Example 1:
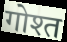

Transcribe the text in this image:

गोश्त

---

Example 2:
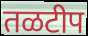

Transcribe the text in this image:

तळटीप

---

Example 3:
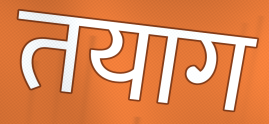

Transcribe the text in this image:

तयाग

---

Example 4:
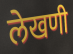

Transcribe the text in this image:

लेखणी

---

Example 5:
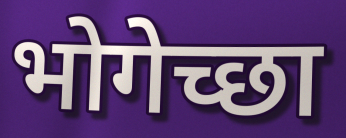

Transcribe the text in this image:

भोगेच्छा